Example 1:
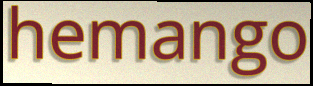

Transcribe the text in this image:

hemango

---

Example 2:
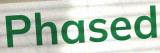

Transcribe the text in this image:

Phased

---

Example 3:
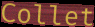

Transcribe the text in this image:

Collet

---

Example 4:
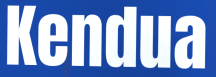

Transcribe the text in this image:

Kendua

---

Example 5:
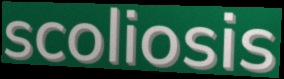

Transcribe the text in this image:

scoliosis